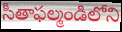
సీతాఫల్మండిలోని